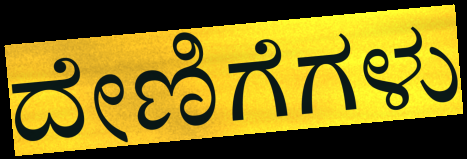
ದೇಣಿಗೆಗಳು